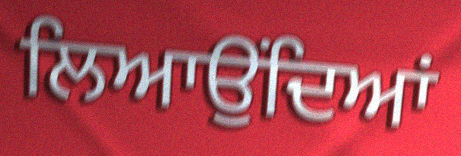
ਲਿਆਉਂਦਿਆਂ